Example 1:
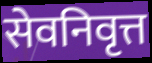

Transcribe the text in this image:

सेवनिवृत्त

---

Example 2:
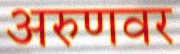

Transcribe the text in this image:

अरुणवर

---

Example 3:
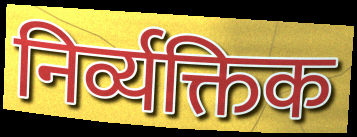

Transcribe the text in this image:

निर्व्यक्तिक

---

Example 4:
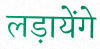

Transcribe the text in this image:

लड़ायेंगे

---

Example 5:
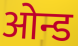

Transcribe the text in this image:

ओन्ड